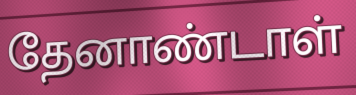
தேனாண்டாள்